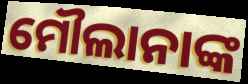
ମୌଲାନାଙ୍କ